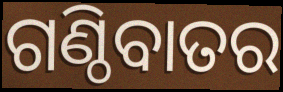
ଗଣ୍ଠିବାତର